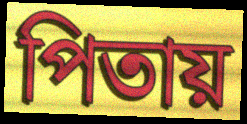
পিতায়